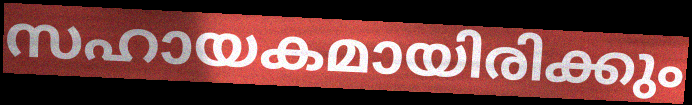
സഹായകമായിരിക്കും